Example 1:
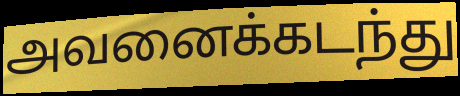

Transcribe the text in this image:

அவனைக்கடந்து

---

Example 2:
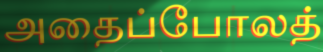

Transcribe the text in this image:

அதைப்போலத்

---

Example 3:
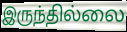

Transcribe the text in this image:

இருந்தில்லை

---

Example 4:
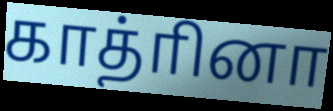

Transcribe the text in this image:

காத்ரினா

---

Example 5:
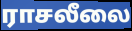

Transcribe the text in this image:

ராசலீலை